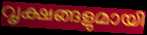
വൃക്ഷങ്ങളുമായി